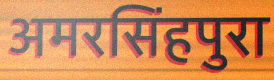
अमरसिंहपुरा